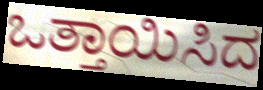
ಒತ್ತಾಯಿಸಿದ